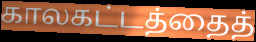
காலகட்டத்தைத்